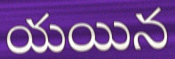
యయిన